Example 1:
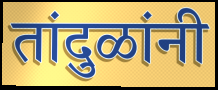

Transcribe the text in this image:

तांदुळांनी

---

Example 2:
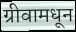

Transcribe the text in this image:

ग्रीवामधून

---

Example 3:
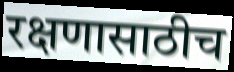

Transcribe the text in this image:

रक्षणासाठीच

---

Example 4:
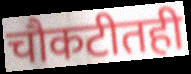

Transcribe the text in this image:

चौकटीतही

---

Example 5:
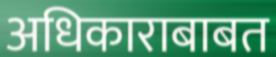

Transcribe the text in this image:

अधिकाराबाबत